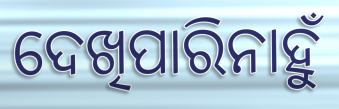
ଦେଖିପାରିନାହୁଁ